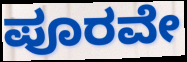
ಪೂರವೇ